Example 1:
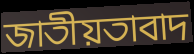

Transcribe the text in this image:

জাতীয়তাবাদ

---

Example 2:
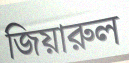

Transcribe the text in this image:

জিয়ারুল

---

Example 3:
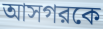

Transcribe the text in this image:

আসগরকে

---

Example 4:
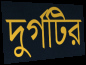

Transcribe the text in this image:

দুর্গটির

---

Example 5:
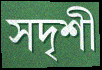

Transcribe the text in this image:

সদৃশী